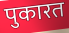
पुकारत